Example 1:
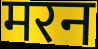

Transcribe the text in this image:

मरन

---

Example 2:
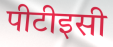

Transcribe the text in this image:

पीटीइसी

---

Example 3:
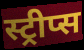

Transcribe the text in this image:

स्ट्रीप्स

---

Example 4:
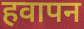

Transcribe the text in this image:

हवापन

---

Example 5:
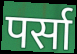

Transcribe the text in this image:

पर्सा